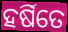
ହର୍ଷିତେ